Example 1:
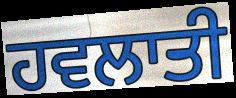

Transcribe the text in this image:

ਹਵਲਾਤੀ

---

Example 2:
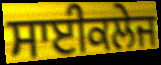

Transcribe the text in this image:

ਸਾਈਕਲੇਜ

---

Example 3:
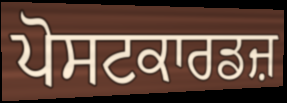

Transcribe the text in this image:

ਪੋਸਟਕਾਰਡਜ਼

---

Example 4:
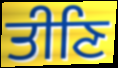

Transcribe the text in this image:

ਤੀਣਿ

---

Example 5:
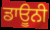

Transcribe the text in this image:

ਡਾਊਨੀ